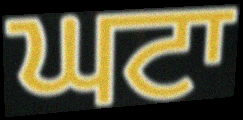
ਘਟਾ